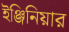
ইঞ্জিনিয়ার